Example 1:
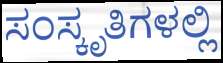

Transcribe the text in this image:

ಸಂಸ್ಕೃತಿಗಳಲ್ಲಿ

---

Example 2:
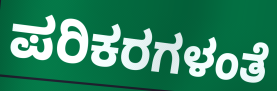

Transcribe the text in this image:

ಪರಿಕರಗಳಂತೆ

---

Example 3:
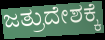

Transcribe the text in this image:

ಜತ್ರುದೇಶಕ್ಕೆ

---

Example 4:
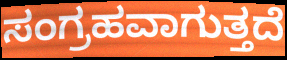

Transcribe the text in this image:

ಸಂಗ್ರಹವಾಗುತ್ತದೆ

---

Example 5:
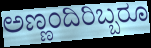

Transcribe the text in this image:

ಅಣ್ಣಂದಿರಿಬ್ಬರೂ